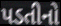
પડતીનો